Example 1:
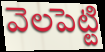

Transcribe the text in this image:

వెలపెట్టి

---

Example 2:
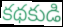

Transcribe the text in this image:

కథకుడి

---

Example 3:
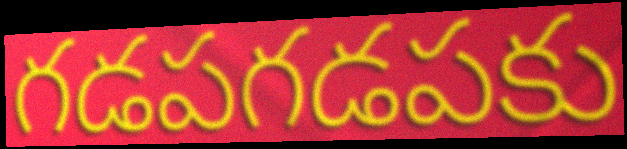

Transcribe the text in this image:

గడపగడపకు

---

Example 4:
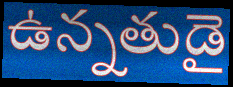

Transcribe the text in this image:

ఉన్నతుడై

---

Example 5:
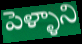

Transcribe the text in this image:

పెళ్ళాని